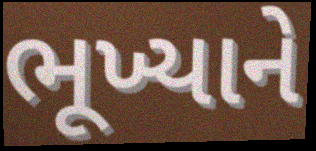
ભૂખ્યાને